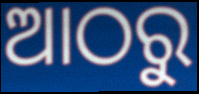
ଆଠରୁ